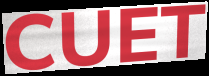
CUET